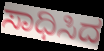
ಸಾಧಿಸಿದ